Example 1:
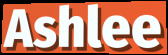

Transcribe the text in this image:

Ashlee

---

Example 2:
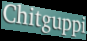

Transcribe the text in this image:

Chitguppi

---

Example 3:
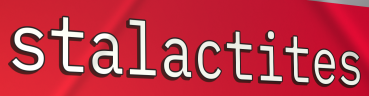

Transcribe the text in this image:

stalactites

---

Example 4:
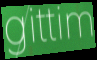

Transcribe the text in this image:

gittim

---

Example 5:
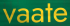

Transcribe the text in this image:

vaate